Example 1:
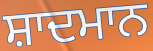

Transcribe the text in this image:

ਸ਼ਾਦਮਾਨ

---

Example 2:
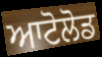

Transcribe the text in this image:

ਆਟੋਲੋਡ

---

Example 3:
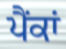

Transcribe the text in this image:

ਪੈਂਕਾਂ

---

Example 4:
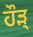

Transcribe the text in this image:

ਹੌੜ੍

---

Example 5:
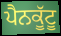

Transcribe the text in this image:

ਪੈਨਕੂੱਟੂ